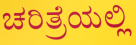
ಚರಿತ್ರೆಯಲ್ಲಿ